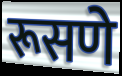
रूसणे